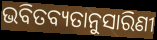
ଭବିତବ୍ୟତାନୁସାରିଣୀ